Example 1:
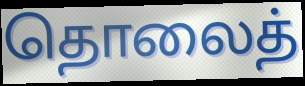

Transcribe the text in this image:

தொலைத்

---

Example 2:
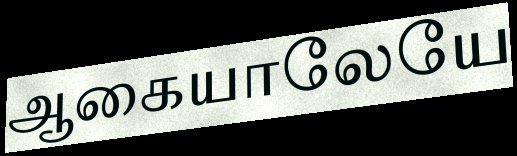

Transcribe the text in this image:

ஆகையாலேயே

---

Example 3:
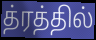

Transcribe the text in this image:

த்ரத்தில்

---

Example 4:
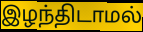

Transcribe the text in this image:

இழந்திடாமல்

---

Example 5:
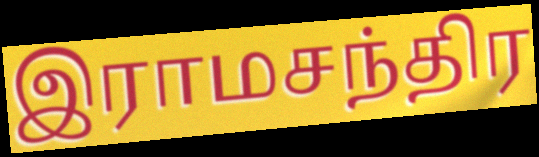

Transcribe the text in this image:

இராமசந்திர